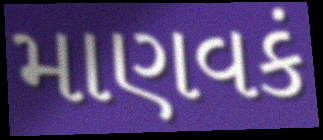
માણવકં